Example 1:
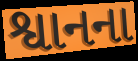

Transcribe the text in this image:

શ્વાનના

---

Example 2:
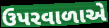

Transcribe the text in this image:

ઉપરવાળાએ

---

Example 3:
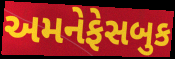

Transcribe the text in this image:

અમનેફેસબુક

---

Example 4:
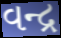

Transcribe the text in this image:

વન્દ્ર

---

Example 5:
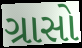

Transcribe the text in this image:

ગ્રાસો